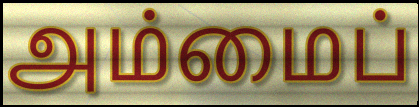
அம்மைப்